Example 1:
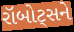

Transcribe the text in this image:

રૉબોટ્સને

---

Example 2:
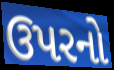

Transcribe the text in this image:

ઉપરનો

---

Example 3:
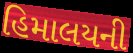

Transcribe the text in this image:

હિમાલયની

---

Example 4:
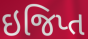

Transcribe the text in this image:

ઇજિપ્ત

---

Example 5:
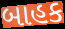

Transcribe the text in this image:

બાહક